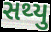
સથ્યુ